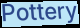
Pottery